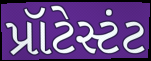
પ્રૉટેસ્ટંટ